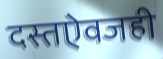
दस्तऐवजही